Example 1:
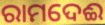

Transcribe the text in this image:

ରାମଦେଈ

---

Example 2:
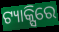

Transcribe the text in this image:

ଟ୍ୟାକ୍ସିରେ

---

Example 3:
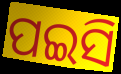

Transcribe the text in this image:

ପଇସି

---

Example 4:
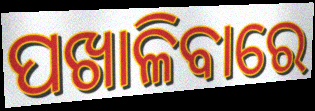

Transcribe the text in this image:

ପଖାଳିବାରେ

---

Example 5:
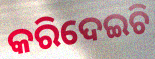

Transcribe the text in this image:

କରିଦେଇଚି